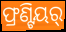
ଫ୍ରଣ୍ଟିୟର୍